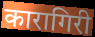
कारागिरी